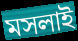
মসলাই